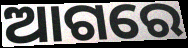
ଆଗରେ